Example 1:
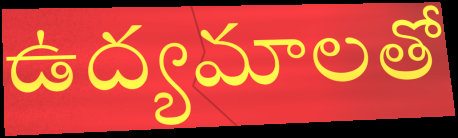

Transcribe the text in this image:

ఉద్యమాలతో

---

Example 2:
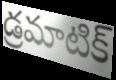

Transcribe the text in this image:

డ్రమాటిక్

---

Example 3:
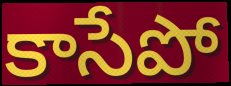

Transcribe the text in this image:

కాసేపో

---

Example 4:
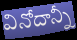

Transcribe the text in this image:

వినోదాన్నీ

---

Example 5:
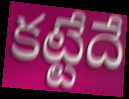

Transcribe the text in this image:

కట్టేదే